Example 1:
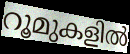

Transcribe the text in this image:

റൂമുകളിൽ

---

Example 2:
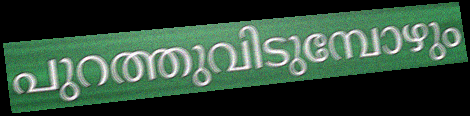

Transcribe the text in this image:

പുറത്തുവിടുമ്പോഴും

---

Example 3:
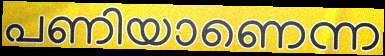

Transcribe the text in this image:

പണിയാണെന്ന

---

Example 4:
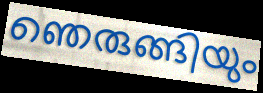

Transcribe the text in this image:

ഞെരുങ്ങിയും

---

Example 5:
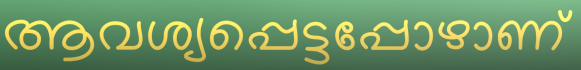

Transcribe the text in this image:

ആവശ്യപ്പെട്ടപ്പോഴാണ്